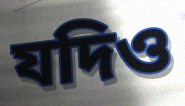
যদিও